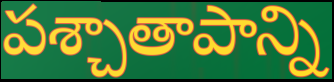
పశ్చాతాపాన్ని